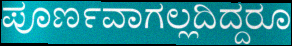
ಪೂರ್ಣವಾಗಲ್ಲದಿದ್ದರೂ